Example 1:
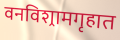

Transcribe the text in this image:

वनविश्रामगृहात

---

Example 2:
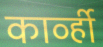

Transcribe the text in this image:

कार्व्ही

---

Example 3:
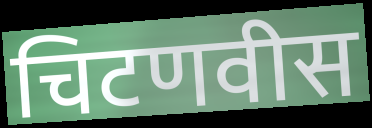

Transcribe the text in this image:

चिटणवीस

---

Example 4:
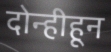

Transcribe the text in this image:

दोन्हीहून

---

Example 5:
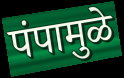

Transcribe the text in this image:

पंपामुळे